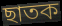
ছাতক